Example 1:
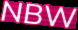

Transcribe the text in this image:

NBW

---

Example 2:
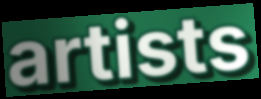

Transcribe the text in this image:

artists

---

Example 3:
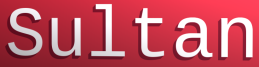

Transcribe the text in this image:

Sultan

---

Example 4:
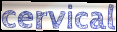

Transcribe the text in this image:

cervical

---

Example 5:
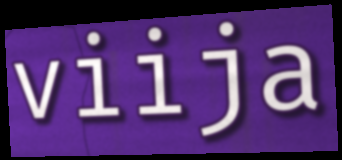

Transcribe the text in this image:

viija